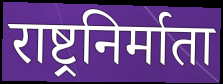
राष्ट्रनिर्माता